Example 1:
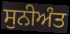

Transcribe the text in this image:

ਸੁਨੀਅੰਤ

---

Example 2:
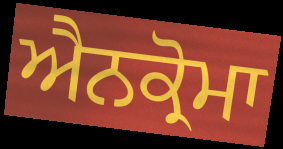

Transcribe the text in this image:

ਐਨਕ੍ਰੋਮਾ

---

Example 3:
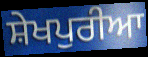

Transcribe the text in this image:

ਸ਼ੇਖਪੁਰੀਆ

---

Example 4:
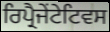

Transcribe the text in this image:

ਰਿਪ੍ਰੈਜੇਂਟੇਟਿਵਸ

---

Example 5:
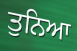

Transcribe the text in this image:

ਤੁਨਿਆ